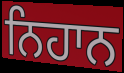
ਨਿਹਾਨ